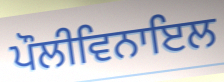
ਪੌਲੀਵਿਨਾਇਲ